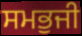
ਸਮਭੁਜੀ